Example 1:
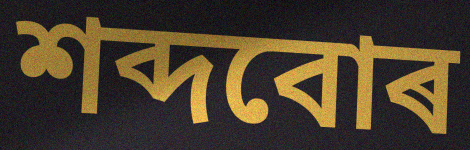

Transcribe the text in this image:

শব্দবোৰ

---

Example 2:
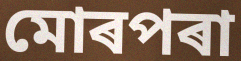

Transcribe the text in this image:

মোৰপৰা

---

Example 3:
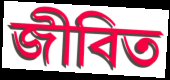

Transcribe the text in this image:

জীবিত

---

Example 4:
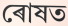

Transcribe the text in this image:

ৰোষত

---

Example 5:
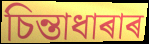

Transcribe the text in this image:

চিন্তাধাৰাৰ